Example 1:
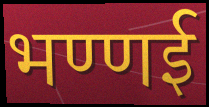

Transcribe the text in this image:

भण्णई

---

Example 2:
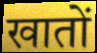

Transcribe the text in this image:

खातों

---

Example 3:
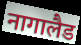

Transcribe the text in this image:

नागालैड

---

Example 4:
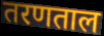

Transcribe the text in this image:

तरणताल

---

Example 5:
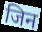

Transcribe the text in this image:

जिन